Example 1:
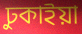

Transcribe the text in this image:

ঢুকাইয়া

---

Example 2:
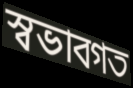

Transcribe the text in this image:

স্বভাবগত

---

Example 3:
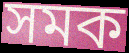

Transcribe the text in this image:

সমক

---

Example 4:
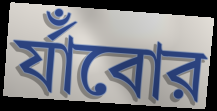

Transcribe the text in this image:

র্যাঁবোর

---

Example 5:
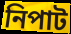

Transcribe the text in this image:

নিপাট